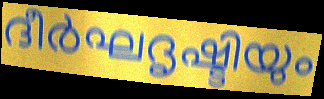
ദീർഘദൃഷ്ടിയും